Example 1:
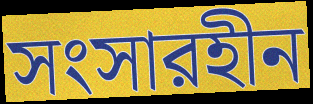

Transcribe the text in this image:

সংসারহীন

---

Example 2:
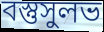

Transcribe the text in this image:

বস্তুসুলভ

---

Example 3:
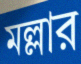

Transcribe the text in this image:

মল্লার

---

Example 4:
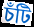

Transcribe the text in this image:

চঁটি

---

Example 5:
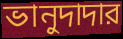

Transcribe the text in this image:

ভানুদাদার